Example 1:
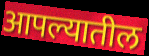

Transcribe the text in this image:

आपल्यातील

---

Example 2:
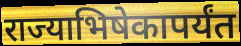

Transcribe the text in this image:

राज्याभिषेकापर्यंत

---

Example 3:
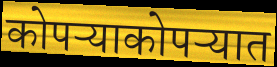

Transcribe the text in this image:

कोपऱ्याकोपऱ्यात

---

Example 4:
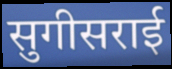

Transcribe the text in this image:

सुगीसराई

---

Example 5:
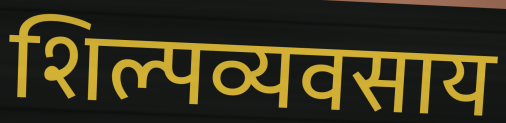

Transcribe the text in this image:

शिल्पव्यवसाय